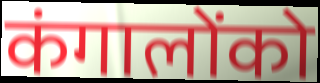
कंगालोंको